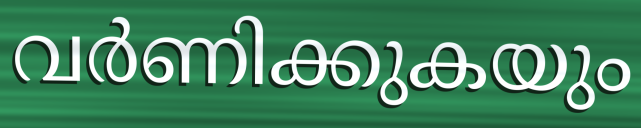
വർണിക്കുകയും